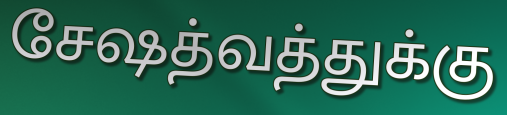
சேஷத்வத்துக்கு